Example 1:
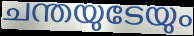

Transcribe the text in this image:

ചന്തയുടേയും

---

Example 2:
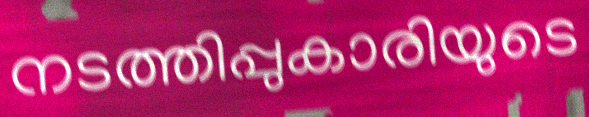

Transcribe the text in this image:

നടത്തിപ്പുകാരിയുടെ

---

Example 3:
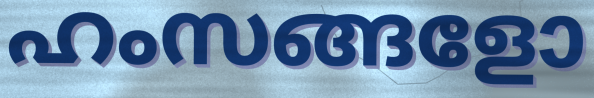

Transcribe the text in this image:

ഹംസങ്ങളോ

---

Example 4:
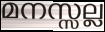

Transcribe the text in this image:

മനസ്സല്ല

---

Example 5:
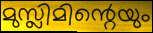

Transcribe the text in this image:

മുസ്ലിമിന്റെയും